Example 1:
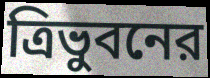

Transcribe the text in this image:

ত্রিভুবনের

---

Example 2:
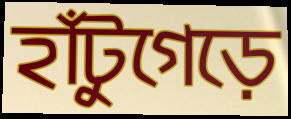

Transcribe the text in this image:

হাঁটুগেড়ে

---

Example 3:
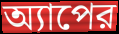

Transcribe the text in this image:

অ্যাপের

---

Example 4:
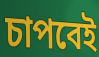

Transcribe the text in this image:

চাপবেই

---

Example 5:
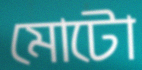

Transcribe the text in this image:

মোটো